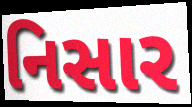
નિસાર